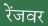
रेंजवर